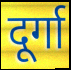
दूर्गा